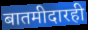
बातमीदारही